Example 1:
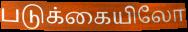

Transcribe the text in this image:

படுக்கையிலோ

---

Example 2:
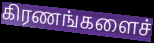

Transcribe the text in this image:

கிரணங்களைச்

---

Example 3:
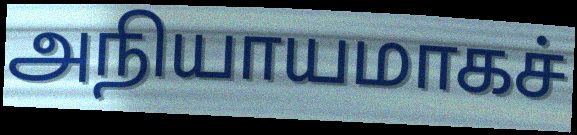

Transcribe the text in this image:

அநியாயமாகச்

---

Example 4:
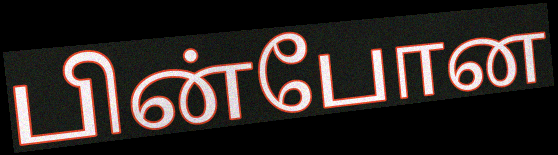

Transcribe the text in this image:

பின்போன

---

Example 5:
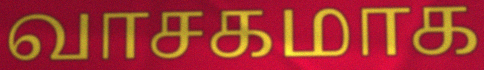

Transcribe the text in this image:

வாசகமாக